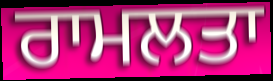
ਰਾਮਲਤਾ